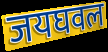
जयघवल